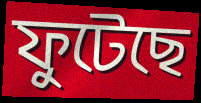
ফুটেছে